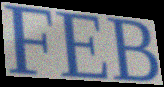
FEB